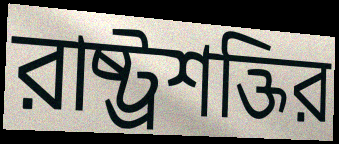
রাষ্ট্রশক্তির